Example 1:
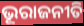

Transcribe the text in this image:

ଭୂରାଜନୀତି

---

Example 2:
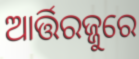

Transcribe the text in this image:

ଆର୍ତ୍ତିରଜ୍ଜୁରେ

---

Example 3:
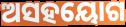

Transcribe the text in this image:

ଅସହୟୋଗ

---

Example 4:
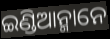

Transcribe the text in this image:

ଇଣ୍ଡିଆନ୍ମାନେ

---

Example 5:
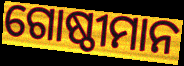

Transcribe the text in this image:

ଗୋଷ୍ଠୀମାନ